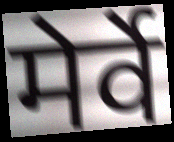
मेर्वे